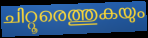
ചിറ്റൂരെത്തുകയും